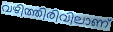
വഴിത്തിരിവിലാണ്